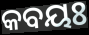
କବୟଃ